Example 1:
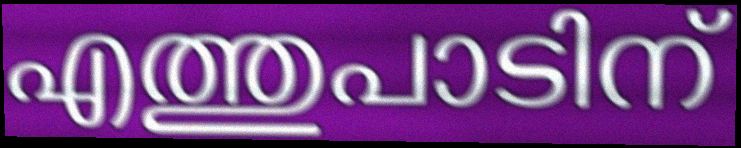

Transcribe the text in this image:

എത്തുപാടിന്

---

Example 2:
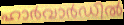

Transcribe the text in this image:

ഹാർവാർഡിൽ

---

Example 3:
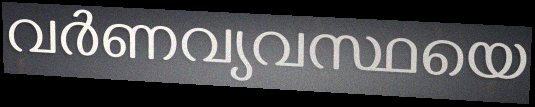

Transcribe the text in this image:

വർണവ്യവസ്ഥയെ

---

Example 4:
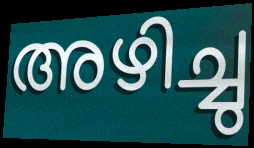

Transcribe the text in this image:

അഴിച്ചു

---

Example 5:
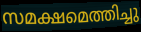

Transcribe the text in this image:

സമക്ഷമെത്തിച്ചു